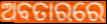
ଅବତାରରେ